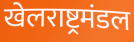
खेलराष्ट्रमंडल